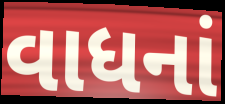
વાધનાં